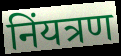
निंयत्रण